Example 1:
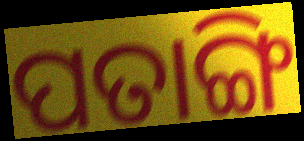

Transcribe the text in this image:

ପତାଙ୍ଗି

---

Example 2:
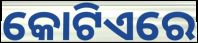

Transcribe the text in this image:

କୋଟିଏରେ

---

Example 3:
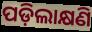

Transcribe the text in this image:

ପଡ଼ିଲାକ୍ଷଣି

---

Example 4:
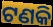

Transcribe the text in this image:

ଟଣକି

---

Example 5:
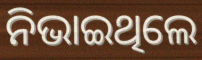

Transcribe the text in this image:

ନିଭାଇଥିଲେ